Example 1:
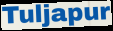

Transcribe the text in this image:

Tuljapur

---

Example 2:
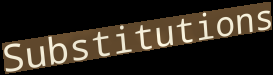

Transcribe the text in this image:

Substitutions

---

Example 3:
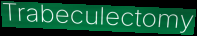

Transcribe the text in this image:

Trabeculectomy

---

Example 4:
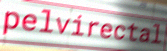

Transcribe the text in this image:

pelvirectal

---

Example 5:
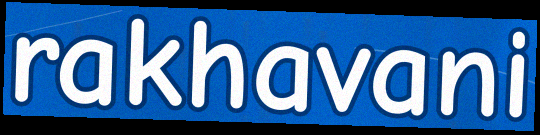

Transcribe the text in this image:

rakhavani